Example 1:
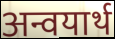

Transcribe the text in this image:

अन्वयार्थ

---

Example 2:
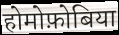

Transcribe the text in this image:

होमोफ़ोबिया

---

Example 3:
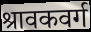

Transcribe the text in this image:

श्रावकवर्ग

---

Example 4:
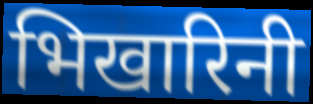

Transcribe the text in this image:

भिखारिनी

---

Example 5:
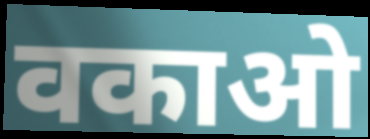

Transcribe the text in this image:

वकाओ